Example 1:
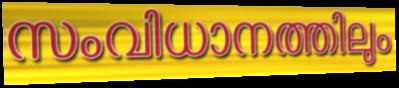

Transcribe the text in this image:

സംവിധാനത്തിലും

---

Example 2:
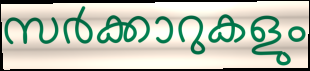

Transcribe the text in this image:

സർക്കാറുകളും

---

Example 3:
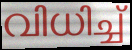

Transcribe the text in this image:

വിധിച്ച്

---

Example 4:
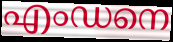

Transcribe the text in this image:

എംഡനെ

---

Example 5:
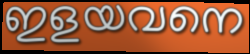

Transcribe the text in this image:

ഇളയവനെ